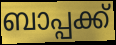
ബാപ്പക്ക്